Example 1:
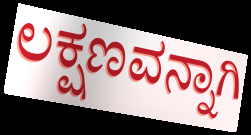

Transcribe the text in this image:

ಲಕ್ಷಣವನ್ನಾಗಿ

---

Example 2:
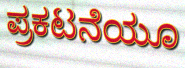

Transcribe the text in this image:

ಪ್ರಕಟನೆಯೂ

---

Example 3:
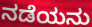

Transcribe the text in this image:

ನಡೆಯನು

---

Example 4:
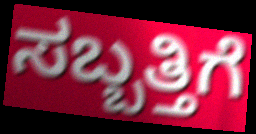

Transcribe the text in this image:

ಸಬ್ಬತ್ತಿಗೆ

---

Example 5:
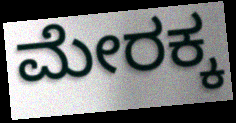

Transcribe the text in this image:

ಮೇರಕ್ಕ